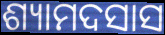
ଶ୍ୟାମଦସାସ